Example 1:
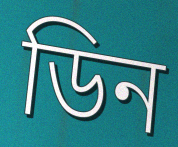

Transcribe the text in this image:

ডিন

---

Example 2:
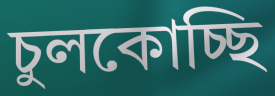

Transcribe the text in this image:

চুলকোচ্ছি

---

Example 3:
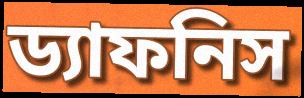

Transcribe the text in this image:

ড্যাফনিস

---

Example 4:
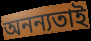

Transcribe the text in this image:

অনন্যতাই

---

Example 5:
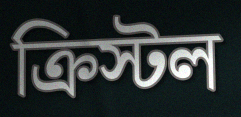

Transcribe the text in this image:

ক্রিস্টল